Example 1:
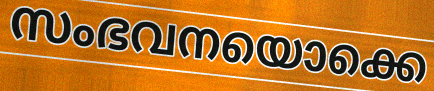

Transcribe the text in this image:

സംഭവനയൊക്കെ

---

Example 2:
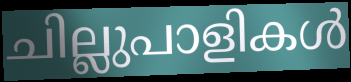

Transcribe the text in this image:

ചില്ലുപാളികൾ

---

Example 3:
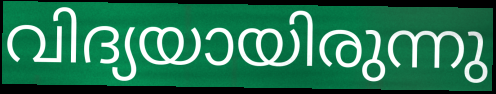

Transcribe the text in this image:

വിദ്യയായിരുന്നു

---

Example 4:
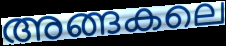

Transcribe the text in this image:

അങ്ങകലെ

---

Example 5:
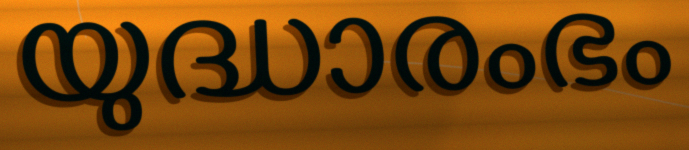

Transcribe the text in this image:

യുദ്ധാരംഭം